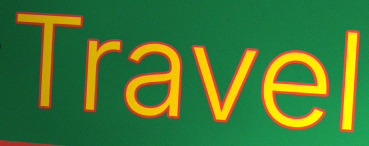
Travel